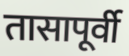
तासापूर्वी